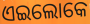
ଏଇଲୋକେ